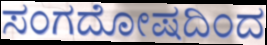
ಸಂಗದೋಷದಿಂದ